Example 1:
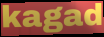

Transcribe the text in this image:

kagad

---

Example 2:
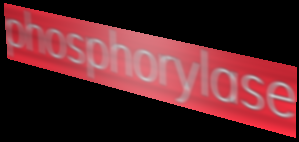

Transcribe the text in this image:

phosphorylase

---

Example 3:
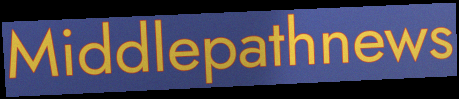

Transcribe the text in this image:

Middlepathnews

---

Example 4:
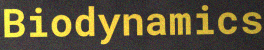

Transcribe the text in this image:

Biodynamics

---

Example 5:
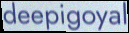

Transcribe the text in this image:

deepigoyal